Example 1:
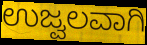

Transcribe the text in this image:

ಉಜ್ವಲವಾಗಿ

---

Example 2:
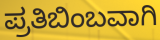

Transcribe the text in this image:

ಪ್ರತಿಬಿಂಬವಾಗಿ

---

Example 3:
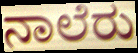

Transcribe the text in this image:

ನಾಲೆರು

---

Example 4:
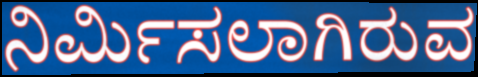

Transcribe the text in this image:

ನಿರ್ಮಿಸಲಾಗಿರುವ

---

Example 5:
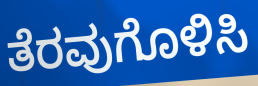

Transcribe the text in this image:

ತೆರವುಗೊಳಿಸಿ